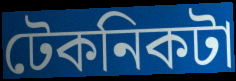
টেকনিকটা